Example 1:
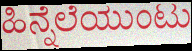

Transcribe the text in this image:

ಹಿನ್ನೆಲೆಯುಂಟು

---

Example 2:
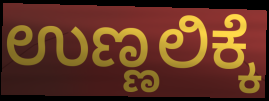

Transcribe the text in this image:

ಉಣ್ಣಲಿಕ್ಕೆ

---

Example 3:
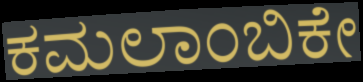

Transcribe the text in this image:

ಕಮಲಾಂಬಿಕೇ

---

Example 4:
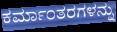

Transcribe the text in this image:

ಕರ್ಮಾಂತರಗಳನ್ನು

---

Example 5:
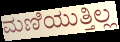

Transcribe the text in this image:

ಮಣಿಯುತ್ತಿಲ್ಲ